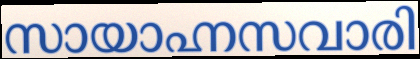
സായാഹ്നസവാരി